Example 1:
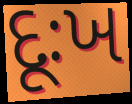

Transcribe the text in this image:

દૂઃખ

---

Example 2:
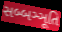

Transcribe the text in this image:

સબ્બઞ્ઞૂતિ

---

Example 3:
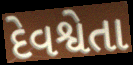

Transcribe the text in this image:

દેવશ્વેતા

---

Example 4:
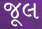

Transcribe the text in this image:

જૂલ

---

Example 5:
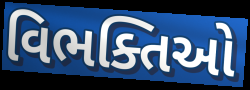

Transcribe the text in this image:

વિભક્તિઓ